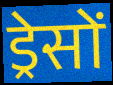
ड्रेसों